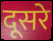
दूसरे